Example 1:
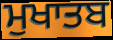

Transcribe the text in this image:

ਮੁਖਾਤਬ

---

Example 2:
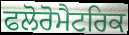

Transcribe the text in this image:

ਫਲੋਰੋਮੈਟਰਿਕ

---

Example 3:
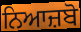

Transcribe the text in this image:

ਨਿਆਜ਼ਬੋ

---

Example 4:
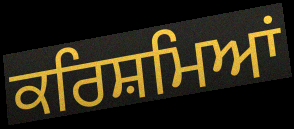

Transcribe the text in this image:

ਕਰਿਸ਼ਮਿਆਂ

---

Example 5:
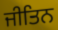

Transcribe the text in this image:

ਜੀਤਿਨ